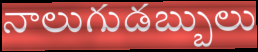
నాలుగుడబ్బులు